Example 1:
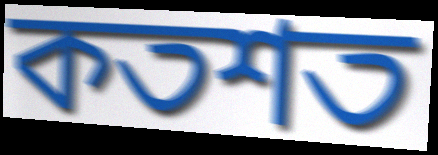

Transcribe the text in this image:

কতশত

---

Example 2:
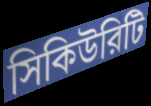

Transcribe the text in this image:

সিকিউরিটি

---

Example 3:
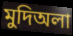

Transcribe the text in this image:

মুদিঅলা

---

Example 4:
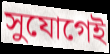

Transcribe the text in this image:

সুযোগেই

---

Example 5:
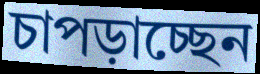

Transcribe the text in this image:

চাপড়াচ্ছেন